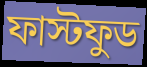
ফাস্টফুড